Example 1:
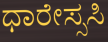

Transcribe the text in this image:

ಧಾರೇಸ್ಸಸಿ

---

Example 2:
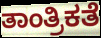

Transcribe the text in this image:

ತಾಂತ್ರಿಕತೆ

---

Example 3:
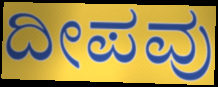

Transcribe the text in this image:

ದೀಪವು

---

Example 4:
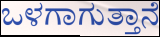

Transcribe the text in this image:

ಒಳಗಾಗುತ್ತಾನೆ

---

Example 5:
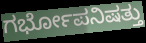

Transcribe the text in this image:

ಗರ್ಭೋಪನಿಷತ್ತು